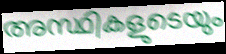
അസ്ഥികളുടെയും